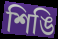
শিঙি